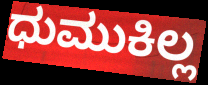
ಧುಮುಕಿಲ್ಲ